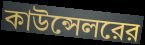
কাউন্সেলরের